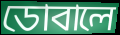
ডোবালে